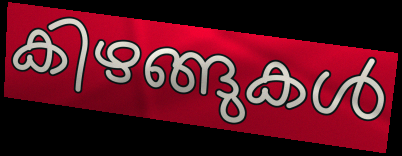
കിഴങ്ങുകൾ